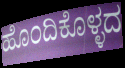
ಹೊಂದಿಕೊಳ್ಳದ